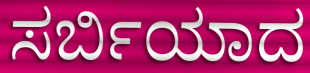
ಸರ್ಬಿಯಾದ